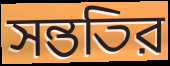
সন্ততির